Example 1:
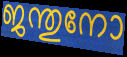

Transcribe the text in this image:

ജന്തുനോ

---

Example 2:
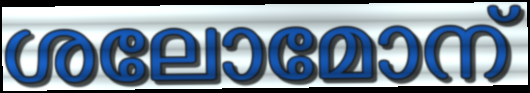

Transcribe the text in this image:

ശലോമോന്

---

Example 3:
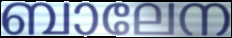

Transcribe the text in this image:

ബാലേന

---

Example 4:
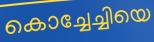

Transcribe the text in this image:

കൊച്ചേച്ചിയെ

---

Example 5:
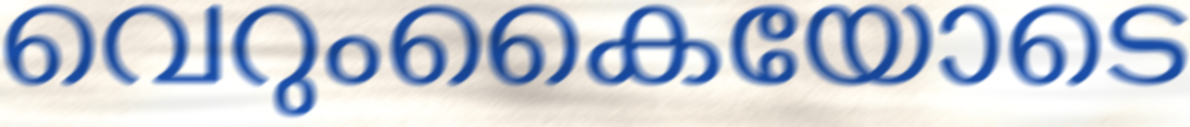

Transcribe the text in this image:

വെറുംകൈയോടെ